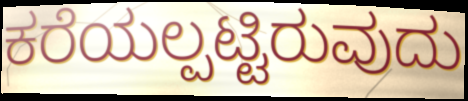
ಕರೆಯಲ್ಪಟ್ಟಿರುವುದು